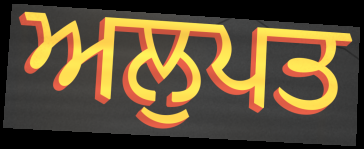
ਅਲੁਪਤ